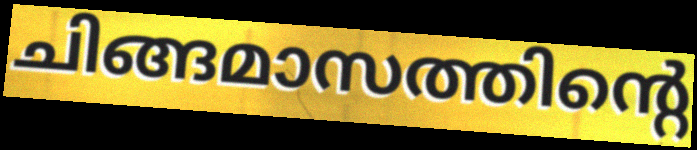
ചിങ്ങമാസത്തിന്റെ